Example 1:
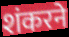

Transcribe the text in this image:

शंकरने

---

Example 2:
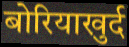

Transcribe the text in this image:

बोरियाखुर्द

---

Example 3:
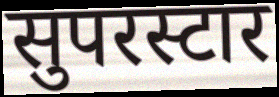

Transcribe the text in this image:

सुपरस्टार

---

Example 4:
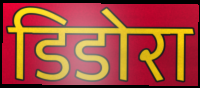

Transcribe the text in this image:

डिडोरा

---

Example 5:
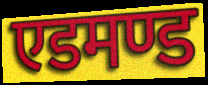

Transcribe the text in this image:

एडमण्ड